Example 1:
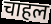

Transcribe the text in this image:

चाहल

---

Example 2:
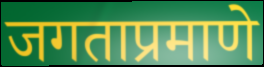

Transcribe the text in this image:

जगताप्रमाणे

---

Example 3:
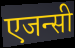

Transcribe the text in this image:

एजन्सी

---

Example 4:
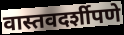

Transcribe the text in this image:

वास्तवदर्शीपणे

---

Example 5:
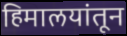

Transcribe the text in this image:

हिमालयांतून